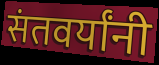
संतवर्यांनी